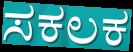
ಸಕಲಕ